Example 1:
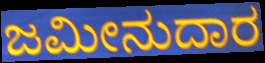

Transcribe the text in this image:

ಜಮೀನುದಾರ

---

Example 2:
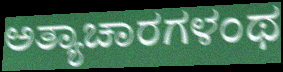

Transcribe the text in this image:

ಅತ್ಯಾಚಾರಗಳಂಥ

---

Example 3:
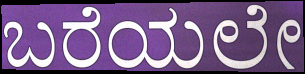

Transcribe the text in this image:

ಬರೆಯಲೇ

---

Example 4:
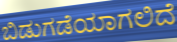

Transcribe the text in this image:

ಬಿಡುಗಡೆಯಾಗಲಿದೆ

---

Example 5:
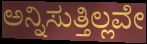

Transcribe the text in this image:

ಅನ್ನಿಸುತ್ತಿಲ್ಲವೇ